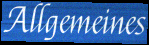
Allgemeines